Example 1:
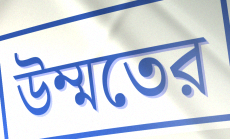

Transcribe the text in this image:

উম্মতের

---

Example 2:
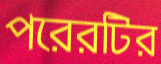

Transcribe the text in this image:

পরেরটির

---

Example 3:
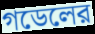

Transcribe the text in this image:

গডেলের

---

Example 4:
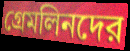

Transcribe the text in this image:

গ্রেমলিনদের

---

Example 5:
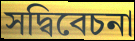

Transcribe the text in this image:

সদ্বিবেচনা